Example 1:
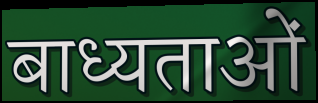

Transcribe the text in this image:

बाध्यताओं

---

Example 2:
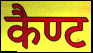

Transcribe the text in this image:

कैण्ट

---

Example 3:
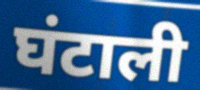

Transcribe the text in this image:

घंटाली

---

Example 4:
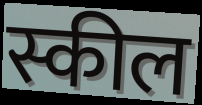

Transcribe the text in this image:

स्‍कील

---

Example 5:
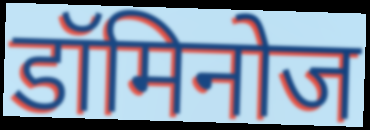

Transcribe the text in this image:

डॉमिनोज